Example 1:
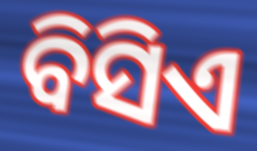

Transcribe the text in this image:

ବିସିଏ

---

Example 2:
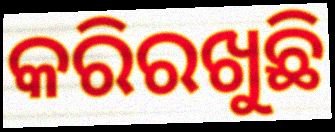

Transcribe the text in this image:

କରିରଖୁଛି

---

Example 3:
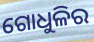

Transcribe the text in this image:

ଗୋଧୁଳିର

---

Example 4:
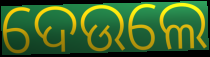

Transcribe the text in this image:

ଦେଉଲେ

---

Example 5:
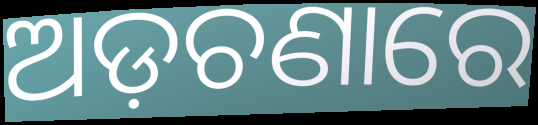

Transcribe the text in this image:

ଅଡ଼ଚଣାରେ